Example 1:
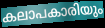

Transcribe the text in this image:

കലാപകാരിയും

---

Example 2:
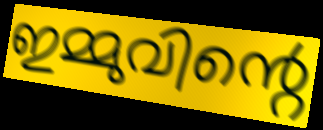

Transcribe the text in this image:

ഇമ്മുവിന്റെ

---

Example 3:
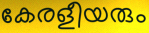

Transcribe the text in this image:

കേരളീയരും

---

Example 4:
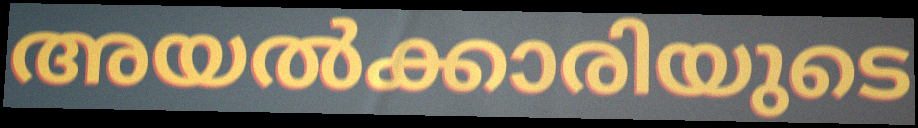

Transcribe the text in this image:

അയൽക്കാരിയുടെ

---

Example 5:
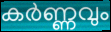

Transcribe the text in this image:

കർണ്ണവും